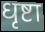
धृष्टा